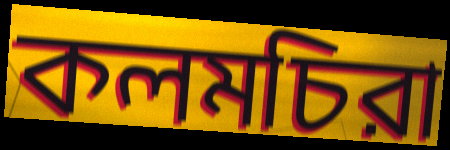
কলমচিরা